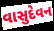
વાસુદેવન